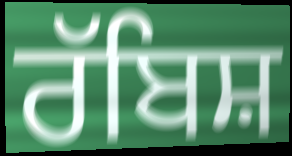
ਰੱਬਿਸ਼